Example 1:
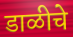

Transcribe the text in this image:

डाळीचे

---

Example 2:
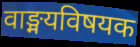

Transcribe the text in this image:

वाङ्मयविषयक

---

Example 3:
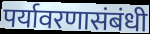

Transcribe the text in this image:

पर्यावरणासंबंधी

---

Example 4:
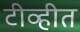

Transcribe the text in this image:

टीव्हीत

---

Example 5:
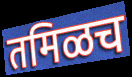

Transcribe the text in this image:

तमिळच